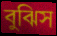
বুঝিস